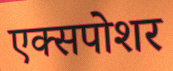
एक्सपोशर